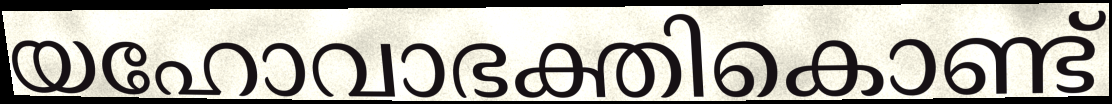
യഹോവാഭക്തികൊണ്ട്